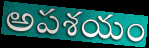
అపశయం